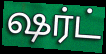
ஷர்ட்